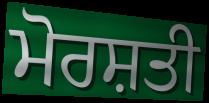
ਮੋਰਸ਼ਤੀ